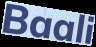
Baali